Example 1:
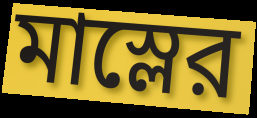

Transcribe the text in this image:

মাস্লের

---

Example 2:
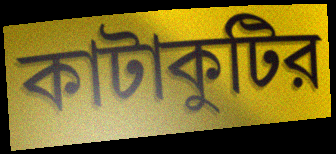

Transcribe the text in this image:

কাটাকুটির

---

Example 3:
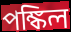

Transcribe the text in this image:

পঙ্কিল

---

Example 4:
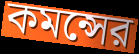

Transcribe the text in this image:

কমন্সের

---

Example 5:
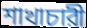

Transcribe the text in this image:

শাখাচারী